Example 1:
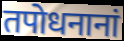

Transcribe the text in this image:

तपोधनानां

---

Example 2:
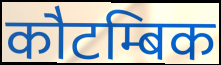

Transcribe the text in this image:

कौटम्बिक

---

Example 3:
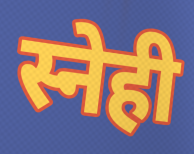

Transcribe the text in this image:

स्नेही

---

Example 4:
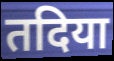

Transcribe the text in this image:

तदिया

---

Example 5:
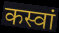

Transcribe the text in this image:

कस्वां